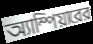
অ্যাম্পিয়ারের